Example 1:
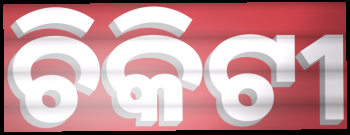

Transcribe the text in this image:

ଚିକିଟୀ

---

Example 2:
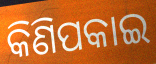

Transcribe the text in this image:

କିଣିପକାଇ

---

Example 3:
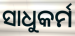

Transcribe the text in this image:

ସାଧୁକର୍ମ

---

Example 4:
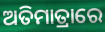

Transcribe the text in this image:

ଅତିମାତ୍ରାରେ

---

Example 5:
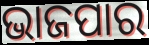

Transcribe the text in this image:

ଭାଜପାର